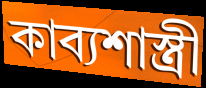
কাব্যশাস্ত্রী